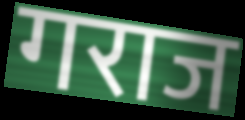
गराज